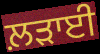
ਲ਼ੜਾਈ